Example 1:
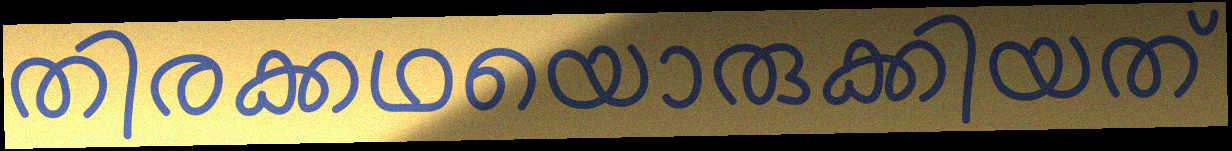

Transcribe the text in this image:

തിരക്കഥയൊരുക്കിയത്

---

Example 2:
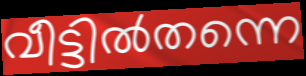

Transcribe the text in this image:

വീട്ടിൽതന്നെ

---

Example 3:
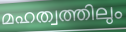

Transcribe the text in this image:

മഹത്വത്തിലും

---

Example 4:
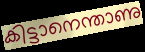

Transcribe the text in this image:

കിട്ടാനെന്താണു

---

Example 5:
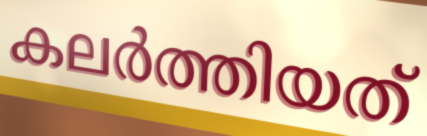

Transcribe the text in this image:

കലർത്തിയത്